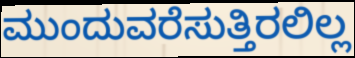
ಮುಂದುವರೆಸುತ್ತಿರಲಿಲ್ಲ